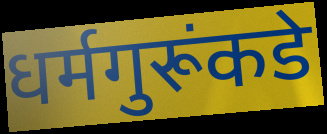
धर्मगुरूंकडे